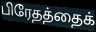
பிரேதத்தைக்